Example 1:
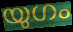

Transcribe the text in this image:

യുഗം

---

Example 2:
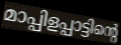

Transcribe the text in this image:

മാപ്പിളപ്പാട്ടിന്റെ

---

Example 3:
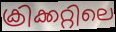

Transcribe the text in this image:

ക്രിക്കറ്റിലെ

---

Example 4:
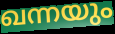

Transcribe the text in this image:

ഖന്നയും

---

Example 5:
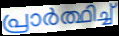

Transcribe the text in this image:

പ്രാർത്ഥിച്ച്